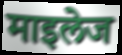
माइलेज